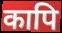
कापि